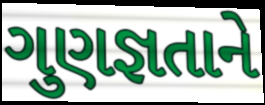
ગુણજ્ઞતાને